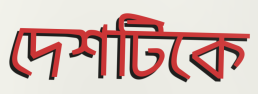
দেশটিকে